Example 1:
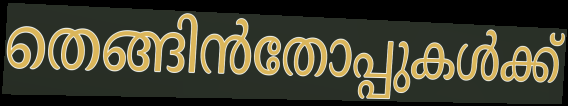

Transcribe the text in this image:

തെങ്ങിൻതോപ്പുകൾക്ക്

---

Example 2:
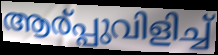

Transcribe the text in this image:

ആര്പ്പുവിളിച്ച്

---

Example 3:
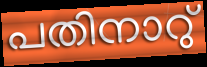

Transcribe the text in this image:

പതിനാറു്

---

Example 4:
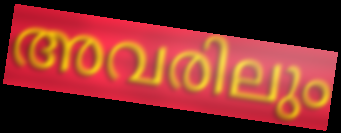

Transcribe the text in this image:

അവരിലും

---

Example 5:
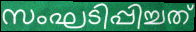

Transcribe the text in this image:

സംഘടിപ്പിച്ചത്